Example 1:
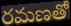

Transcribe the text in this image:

రమణతో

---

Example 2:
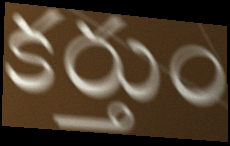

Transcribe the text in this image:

కర్తుం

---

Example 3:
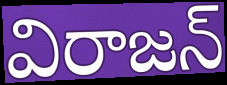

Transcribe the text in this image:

విరాజన్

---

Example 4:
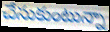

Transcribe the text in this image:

చేసుకుంటున్నా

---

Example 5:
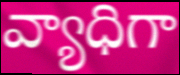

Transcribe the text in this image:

వ్యాధిగా